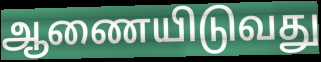
ஆணையிடுவது